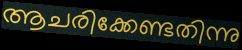
ആചരിക്കേണ്ടതിന്നു